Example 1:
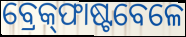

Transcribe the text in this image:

ବ୍ରେକ୍‌ଫାଷ୍ଟବେଳେ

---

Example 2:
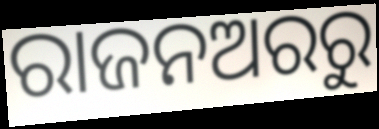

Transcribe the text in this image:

ରାଜନଅରରୁ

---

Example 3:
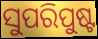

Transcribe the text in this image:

ସୁପରିପୁଷ୍ଟ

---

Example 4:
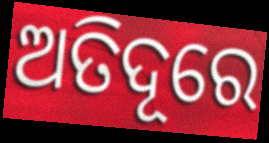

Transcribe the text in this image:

ଅତିଦୂରେ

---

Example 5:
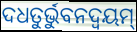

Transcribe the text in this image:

ଦଧତୁର୍ଭୁବନଦ୍ଵୟମ୍